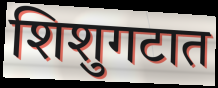
शिशुगटात